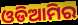
ଓଡିଆମିର